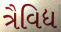
ત્રૈવિદ્ય